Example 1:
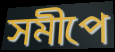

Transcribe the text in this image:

সমীপে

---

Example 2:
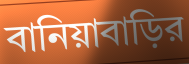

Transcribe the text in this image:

বানিয়াবাড়ির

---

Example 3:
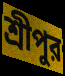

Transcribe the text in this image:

শ্রীপুর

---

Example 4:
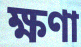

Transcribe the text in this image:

ক্ষণা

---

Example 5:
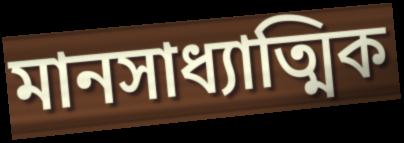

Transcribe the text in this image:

মানসাধ্যাত্মিক